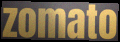
zomato